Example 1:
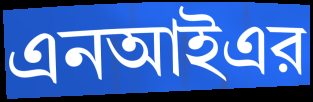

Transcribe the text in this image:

এনআইএর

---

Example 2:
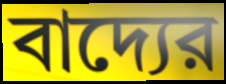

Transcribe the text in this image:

বাদ্যের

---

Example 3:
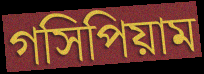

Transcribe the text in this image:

গসিপিয়াম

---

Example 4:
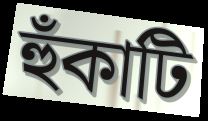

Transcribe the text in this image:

হুঁকাটি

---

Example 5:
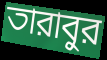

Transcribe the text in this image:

তারাবুর